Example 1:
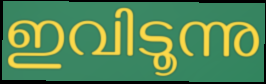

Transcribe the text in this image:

ഇവിടൂന്നു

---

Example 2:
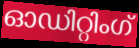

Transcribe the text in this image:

ഓഡിറ്റിംഗ്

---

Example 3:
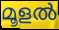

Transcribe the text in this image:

മൂളൽ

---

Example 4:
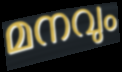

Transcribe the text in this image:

മനവും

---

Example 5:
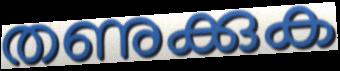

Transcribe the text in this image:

തണുക്കുക